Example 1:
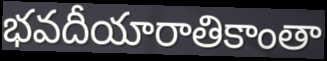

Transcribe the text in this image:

భవదీయారాతికాంతా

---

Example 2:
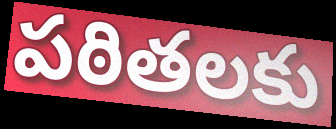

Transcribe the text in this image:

పఠితలకు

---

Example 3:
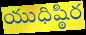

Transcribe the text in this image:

యుధిష్ఠిర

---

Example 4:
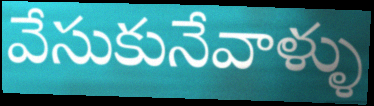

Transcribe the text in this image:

వేసుకునేవాళ్ళు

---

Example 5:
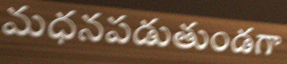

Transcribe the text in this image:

మధనపడుతుండగా